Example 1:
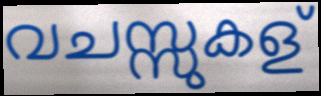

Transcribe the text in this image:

വചസ്സുകള്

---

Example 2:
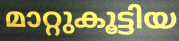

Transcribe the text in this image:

മാറ്റുകൂട്ടിയ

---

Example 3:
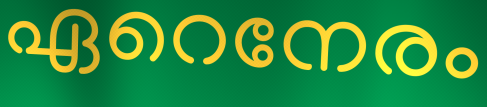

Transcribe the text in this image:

ഏറെനേരം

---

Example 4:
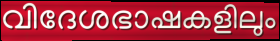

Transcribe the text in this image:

വിദേശഭാഷകളിലും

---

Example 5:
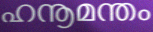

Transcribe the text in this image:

ഹനൂമന്തം